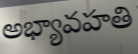
అభ్యావహతి